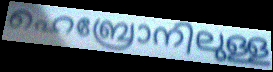
ഹെബ്രോനിലുള്ള